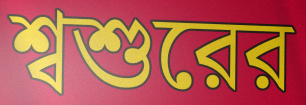
শ্বশুরের